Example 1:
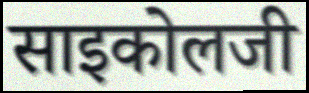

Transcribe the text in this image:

साइकोलजी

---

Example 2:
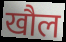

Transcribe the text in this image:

खौल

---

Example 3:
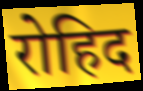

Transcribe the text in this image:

रोहिद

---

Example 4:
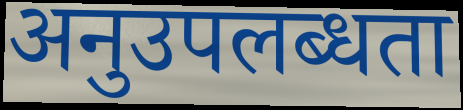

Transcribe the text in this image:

अनुउपलब्धता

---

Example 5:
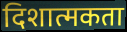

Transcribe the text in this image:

दिशात्मकता